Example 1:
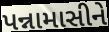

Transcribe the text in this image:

પન્નામાસીને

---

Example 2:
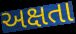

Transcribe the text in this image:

અક્ષતા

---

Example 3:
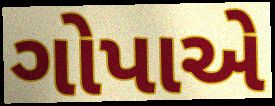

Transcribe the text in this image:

ગોપાએ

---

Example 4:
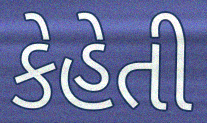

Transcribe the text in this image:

કેહેતી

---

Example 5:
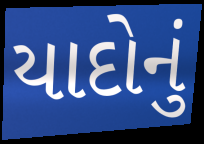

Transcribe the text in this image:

યાદોનું